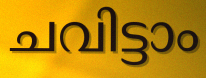
ചവിട്ടാം